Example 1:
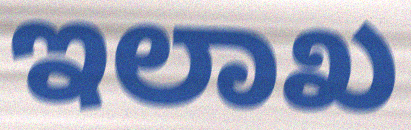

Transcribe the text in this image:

ಇಲಾಖ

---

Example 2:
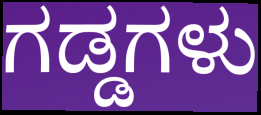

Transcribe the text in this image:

ಗಡ್ಡಗಳು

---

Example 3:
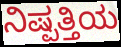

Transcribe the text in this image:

ನಿಷ್ಪತ್ತಿಯ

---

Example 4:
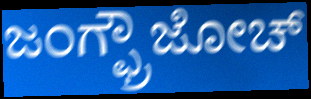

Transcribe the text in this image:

ಜಂಗ್ಫ್ರೌಜೋಚ್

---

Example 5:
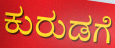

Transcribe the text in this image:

ಕುರುಡಗೆ